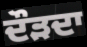
ਦੌੜਦਾ